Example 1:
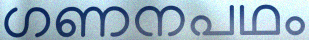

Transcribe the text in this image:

ഗണനപഥം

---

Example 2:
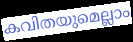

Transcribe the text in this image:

കവിതയുമെല്ലാം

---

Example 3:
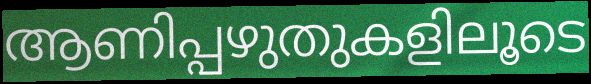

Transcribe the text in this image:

ആണിപ്പഴുതുകളിലൂടെ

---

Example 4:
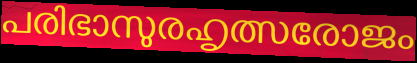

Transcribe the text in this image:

പരിഭാസുരഹൃത്സരോജം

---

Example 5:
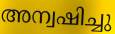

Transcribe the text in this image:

അന്വഷിച്ചു